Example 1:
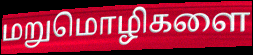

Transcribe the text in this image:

மறுமொழிகளை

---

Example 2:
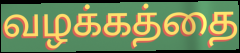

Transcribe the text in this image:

வழக்கத்தை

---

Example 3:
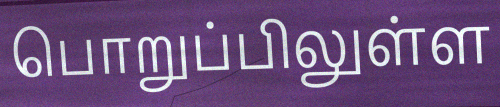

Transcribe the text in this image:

பொறுப்பிலுள்ள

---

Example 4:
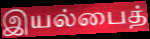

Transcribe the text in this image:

இயல்பைத்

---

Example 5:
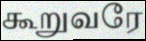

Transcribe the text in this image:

கூறுவரே